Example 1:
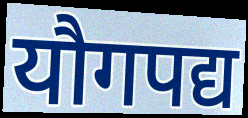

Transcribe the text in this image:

यौगपद्य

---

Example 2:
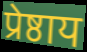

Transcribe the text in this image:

प्रेष्ठाय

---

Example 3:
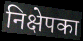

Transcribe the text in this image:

निक्षेपका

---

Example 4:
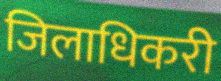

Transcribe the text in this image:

जिलाधिकरी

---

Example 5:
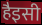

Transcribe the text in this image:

हैइसी